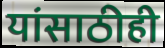
यांसाठीही